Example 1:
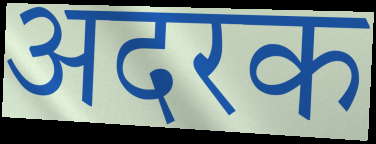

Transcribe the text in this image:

अदरक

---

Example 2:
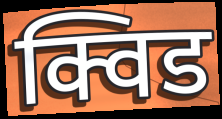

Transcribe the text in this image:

क्विड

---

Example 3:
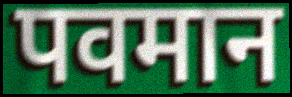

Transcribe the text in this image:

पवमान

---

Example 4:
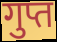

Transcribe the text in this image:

गुप्त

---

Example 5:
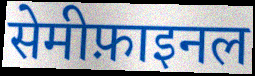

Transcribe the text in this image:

सेमीफ़ाइनल